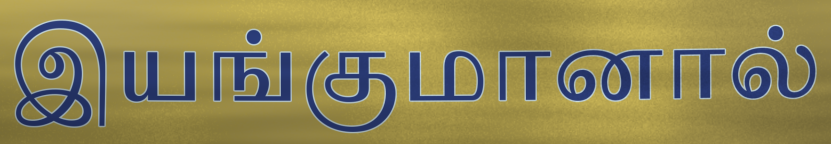
இயங்குமானால்